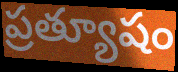
ప్రత్యూషం